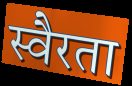
स्वैरता